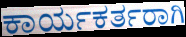
ಕಾರ್ಯಕರ್ತರಾಗಿ